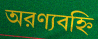
অরণ্যবহ্নি